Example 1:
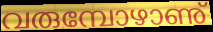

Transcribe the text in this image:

വരുമ്പോഴാണു്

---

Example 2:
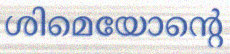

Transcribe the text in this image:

ശിമെയോന്റെ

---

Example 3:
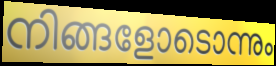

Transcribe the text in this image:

നിങ്ങളോടൊന്നും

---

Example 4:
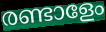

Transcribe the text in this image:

രണ്ടാളേം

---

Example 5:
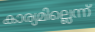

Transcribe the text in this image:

കാര്യമില്ലെന്ന്